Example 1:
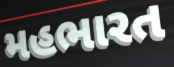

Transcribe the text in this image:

મહભારત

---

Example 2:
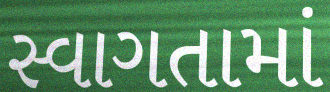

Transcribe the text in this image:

સ્વાગતામાં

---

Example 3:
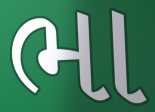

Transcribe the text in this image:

ભા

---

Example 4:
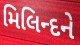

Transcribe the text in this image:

મિલિન્દને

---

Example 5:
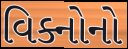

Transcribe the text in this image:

વિક્નોનો